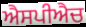
ਐਸਪੀਐਚ